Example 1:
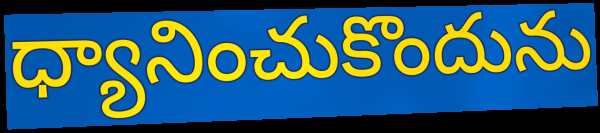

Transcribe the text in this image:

ధ్యానించుకొందును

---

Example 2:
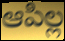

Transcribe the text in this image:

ఆపిల్ల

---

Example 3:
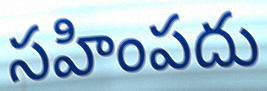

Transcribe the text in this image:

సహింపదు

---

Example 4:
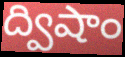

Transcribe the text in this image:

ద్విషాం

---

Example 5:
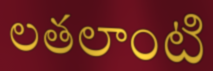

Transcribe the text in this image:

లతలాంటి